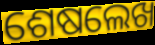
ଶେଷଲେଖ